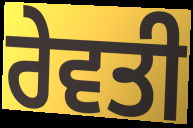
ਰੇਵਤੀ